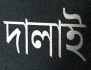
দালাই